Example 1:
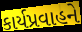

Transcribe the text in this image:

કાર્યપ્રવાહને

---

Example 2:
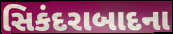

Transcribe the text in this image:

સિકંદરાબાદના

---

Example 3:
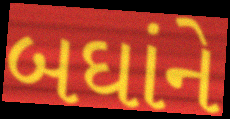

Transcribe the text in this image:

બઘાંને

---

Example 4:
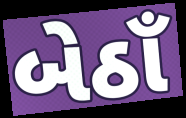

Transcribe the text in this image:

બેઠાઁ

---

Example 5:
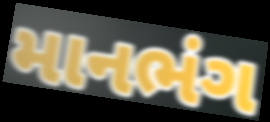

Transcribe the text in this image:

માનભંગ